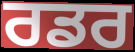
ਰਡਰ